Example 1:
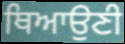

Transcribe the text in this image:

ਥਿਆਉਣੀ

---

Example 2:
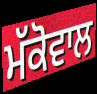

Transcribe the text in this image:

ਮੱਕੋਵਾਲ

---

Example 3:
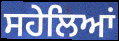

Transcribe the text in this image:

ਸਹੇਲਿਆਂ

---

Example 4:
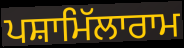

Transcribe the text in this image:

ਪਸ਼ਾਮਿੱਲਾਰਾਮ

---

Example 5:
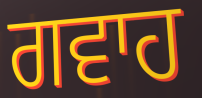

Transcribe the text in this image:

ਗਵਾਹ